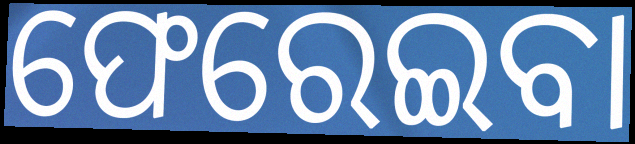
ଫେରେଇବା